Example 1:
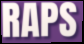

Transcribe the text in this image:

RAPS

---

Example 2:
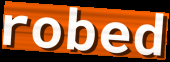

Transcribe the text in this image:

robed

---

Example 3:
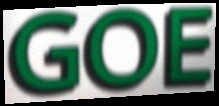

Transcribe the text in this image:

GOE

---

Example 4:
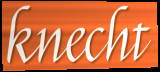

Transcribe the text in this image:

knecht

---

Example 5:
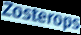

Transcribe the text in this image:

Zosterops